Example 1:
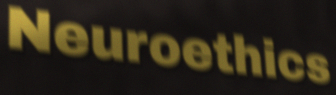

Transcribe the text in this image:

Neuroethics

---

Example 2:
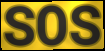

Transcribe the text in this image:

SOS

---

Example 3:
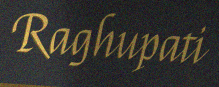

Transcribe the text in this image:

Raghupati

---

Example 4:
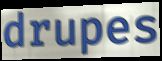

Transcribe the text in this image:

drupes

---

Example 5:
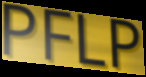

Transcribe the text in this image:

PFLP